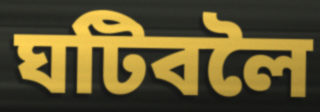
ঘটিবলৈ